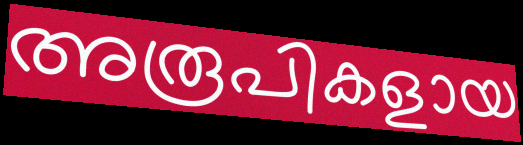
അരൂപികളായ